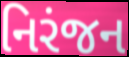
નિરંજન